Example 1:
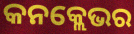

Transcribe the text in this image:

କନକ୍ଲେଭର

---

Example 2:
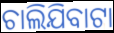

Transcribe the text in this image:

ଚାଲିଯିବାଟା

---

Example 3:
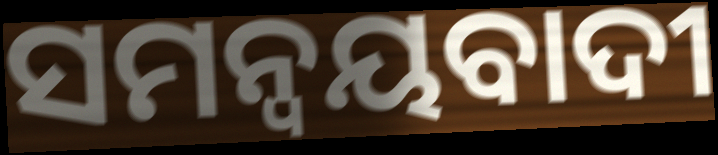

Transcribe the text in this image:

ସମନ୍ୱୟବାଦୀ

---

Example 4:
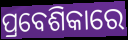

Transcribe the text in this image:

ପ୍ରବେଶିକାରେ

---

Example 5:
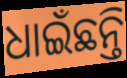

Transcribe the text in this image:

ଧାଇଁଛନ୍ତି